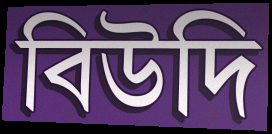
বিউদি